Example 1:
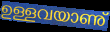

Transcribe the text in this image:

ഉള്ളവയാണു്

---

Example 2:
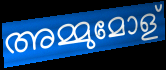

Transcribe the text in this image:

അമ്മുമോള്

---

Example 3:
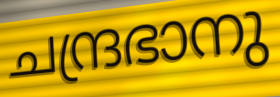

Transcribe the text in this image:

ചന്ദ്രഭാനു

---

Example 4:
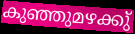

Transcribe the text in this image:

കുഞ്ഞുമഴക്കു്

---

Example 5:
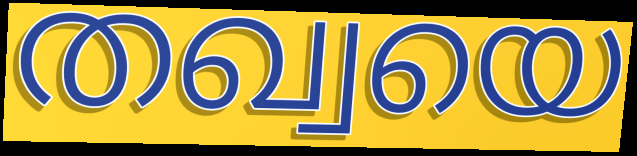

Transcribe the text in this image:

തഖ്വയെ